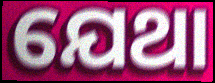
ଯେଥା